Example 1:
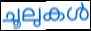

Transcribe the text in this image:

ചൂലുകൾ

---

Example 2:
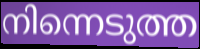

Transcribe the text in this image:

നിന്നെടുത്ത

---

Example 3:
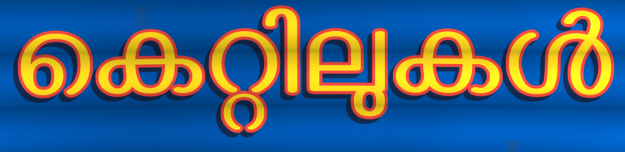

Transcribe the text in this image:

കെറ്റിലുകൾ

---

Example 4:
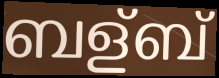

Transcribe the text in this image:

ബള്ബ്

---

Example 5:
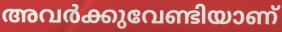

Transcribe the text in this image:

അവർക്കുവേണ്ടിയാണ്